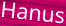
Hanus